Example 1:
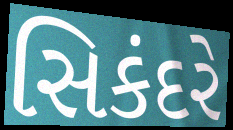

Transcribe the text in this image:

સિકંદરે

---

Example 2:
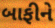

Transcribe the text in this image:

બાફીને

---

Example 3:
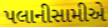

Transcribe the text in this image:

પલાનીસામીએ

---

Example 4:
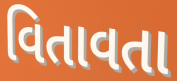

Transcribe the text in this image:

વિતાવતા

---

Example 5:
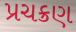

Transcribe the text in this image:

પ્રચક્રણ